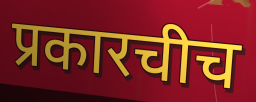
प्रकारचीच